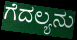
ಗೆದಲ್ಯನು